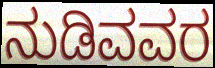
ನುಡಿವವರ